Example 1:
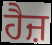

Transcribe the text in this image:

ਹੈਜ਼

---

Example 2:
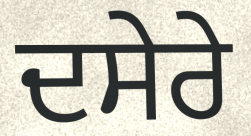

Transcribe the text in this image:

ਦਸੇਰੇ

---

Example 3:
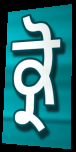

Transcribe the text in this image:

ਕ੍ਰੋ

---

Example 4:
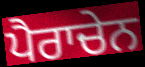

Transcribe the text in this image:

ਪੈਰਾਚੇਨ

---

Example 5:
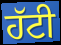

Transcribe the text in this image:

ਹੱਟੀ